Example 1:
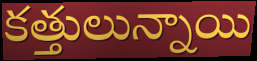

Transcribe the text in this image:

కత్తులున్నాయి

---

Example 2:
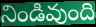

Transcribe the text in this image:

నిండివుంది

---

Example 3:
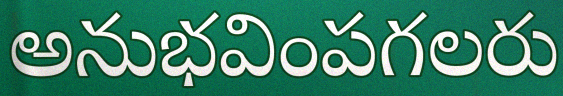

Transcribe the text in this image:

అనుభవింపగలరు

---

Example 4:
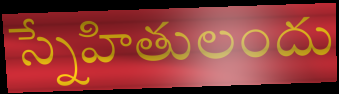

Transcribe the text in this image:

స్నేహితులందు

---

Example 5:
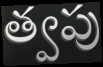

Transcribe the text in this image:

త్వపు